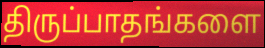
திருப்பாதங்களை